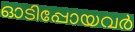
ഓടിപ്പോയവർ